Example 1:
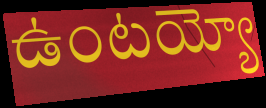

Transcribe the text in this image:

ఉంటయ్యో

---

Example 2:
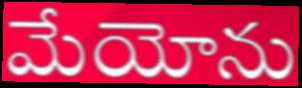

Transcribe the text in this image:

మేయోను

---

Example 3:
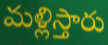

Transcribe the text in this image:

మళ్లిస్తారు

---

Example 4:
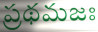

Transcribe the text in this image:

ప్రథమజః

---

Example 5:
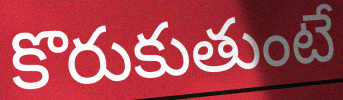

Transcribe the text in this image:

కొరుకుతుంటే